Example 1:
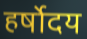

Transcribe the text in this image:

हर्षोदय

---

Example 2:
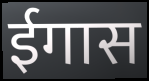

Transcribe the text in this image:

ईगास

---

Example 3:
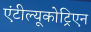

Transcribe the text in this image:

एंटील्यूकोट्रिएन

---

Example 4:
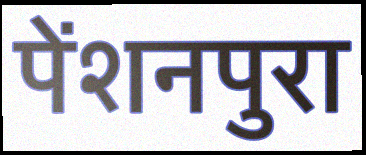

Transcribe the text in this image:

पेंशनपुरा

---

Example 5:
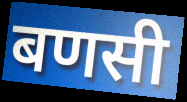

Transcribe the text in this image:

बणसी